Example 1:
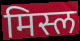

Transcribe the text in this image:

मिस्ल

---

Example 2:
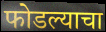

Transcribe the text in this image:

फोडल्याचा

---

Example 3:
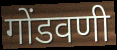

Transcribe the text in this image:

गोंडवणी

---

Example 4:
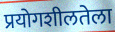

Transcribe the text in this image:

प्रयोगशीलतेला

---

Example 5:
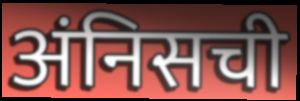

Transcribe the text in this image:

अंनिसची